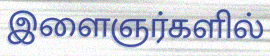
இளைஞர்களில்